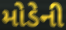
મોડેની